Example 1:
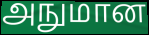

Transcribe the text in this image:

அநுமான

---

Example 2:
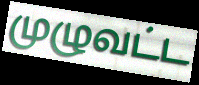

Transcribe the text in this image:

முழுவட்ட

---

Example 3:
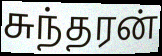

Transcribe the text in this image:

சுந்தரன்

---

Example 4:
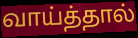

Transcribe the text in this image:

வாய்த்தால்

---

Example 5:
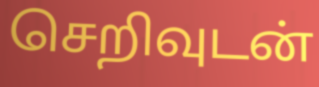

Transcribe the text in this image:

செறிவுடன்